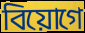
বিয়োগে